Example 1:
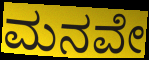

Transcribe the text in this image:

ಮನವೇ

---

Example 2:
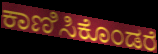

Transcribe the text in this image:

ಕಾಣಿಸಿಕೊಂಡರೆ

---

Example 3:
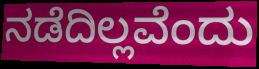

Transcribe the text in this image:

ನಡೆದಿಲ್ಲವೆಂದು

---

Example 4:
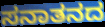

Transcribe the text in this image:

ಸನಾತನದ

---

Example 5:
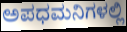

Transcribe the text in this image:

ಅಪಧಮನಿಗಳಲ್ಲಿ